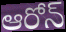
ఆరోన్